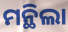
ମନ୍ଥିଲା